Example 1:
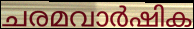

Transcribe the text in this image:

ചരമവാർഷിക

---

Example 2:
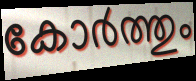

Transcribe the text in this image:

കോർത്തും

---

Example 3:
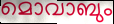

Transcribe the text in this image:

മൊവാബും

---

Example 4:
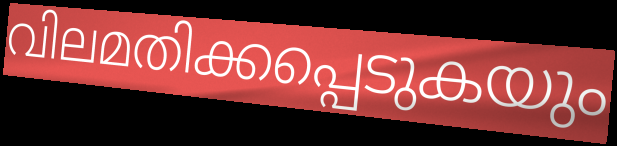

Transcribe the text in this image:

വിലമതിക്കപ്പെടുകയും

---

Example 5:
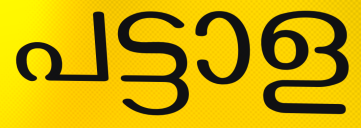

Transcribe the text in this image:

പട്ടാള